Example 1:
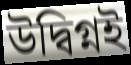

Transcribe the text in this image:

উদ্বিগ্নই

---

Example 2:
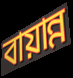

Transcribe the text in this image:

বায়ান্ন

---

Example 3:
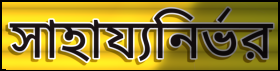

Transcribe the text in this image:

সাহায্যনির্ভর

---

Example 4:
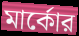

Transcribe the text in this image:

মার্কোর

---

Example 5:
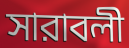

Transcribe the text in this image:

সারাবলী